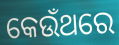
କେଉଁଥରେ